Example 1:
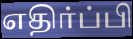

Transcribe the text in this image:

எதிர்ப்பி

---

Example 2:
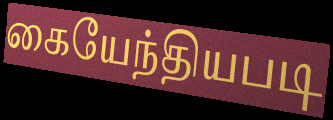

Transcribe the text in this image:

கையேந்தியபடி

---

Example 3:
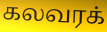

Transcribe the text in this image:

கலவரக்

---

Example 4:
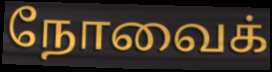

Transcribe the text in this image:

நோவைக்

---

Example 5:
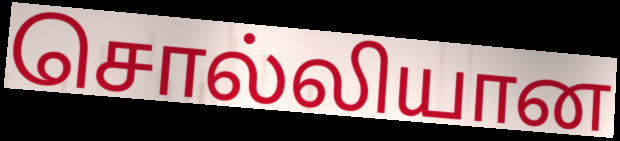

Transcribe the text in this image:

சொல்லியான